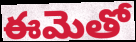
ఈమెతో